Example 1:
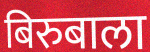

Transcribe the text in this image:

बिरुबाला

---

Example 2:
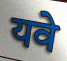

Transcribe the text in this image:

यवे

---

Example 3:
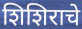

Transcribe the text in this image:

शिशिराचे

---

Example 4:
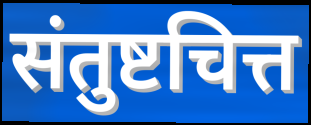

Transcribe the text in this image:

संतुष्टचित्त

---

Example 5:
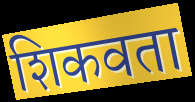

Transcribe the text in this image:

शिकवता